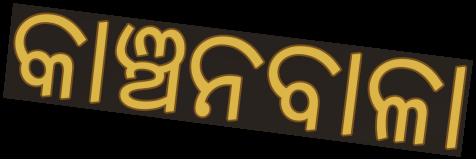
କାଞ୍ଚନବାଳା